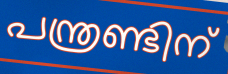
പന്ത്രണ്ടിന്